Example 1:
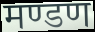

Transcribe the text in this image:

मण्डण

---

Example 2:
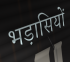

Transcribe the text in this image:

भड़ासियों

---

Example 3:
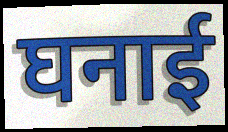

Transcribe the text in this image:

घनाई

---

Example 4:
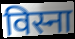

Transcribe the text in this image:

विस्ना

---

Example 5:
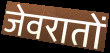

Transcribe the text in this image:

जेवरातों